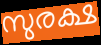
സുരക്ഷ